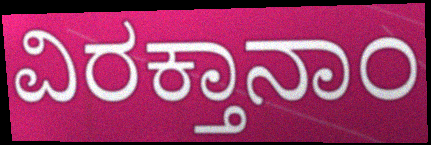
ವಿರಕ್ತಾನಾಂ